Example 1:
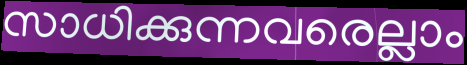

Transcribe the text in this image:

സാധിക്കുന്നവരെല്ലാം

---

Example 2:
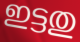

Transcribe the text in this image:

ഇട്ടതു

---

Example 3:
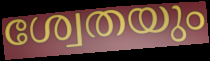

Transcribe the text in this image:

ശ്വേതയും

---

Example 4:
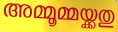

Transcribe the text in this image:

അമ്മൂമ്മയ്ക്കതു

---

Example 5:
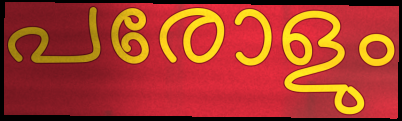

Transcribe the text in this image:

പരോളും